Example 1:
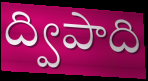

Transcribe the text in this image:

ద్విపాది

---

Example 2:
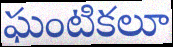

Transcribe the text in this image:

ఘంటికలూ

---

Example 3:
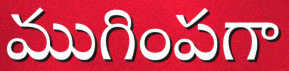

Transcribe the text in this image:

ముగింపగా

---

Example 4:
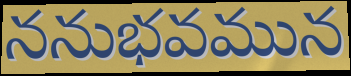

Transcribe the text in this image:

ననుభవమున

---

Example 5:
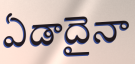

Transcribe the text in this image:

ఏడాదైనా